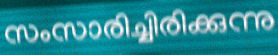
സംസാരിച്ചിരിക്കുന്നു